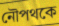
নৌপথকে